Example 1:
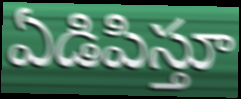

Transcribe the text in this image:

ఏడిపిస్తూ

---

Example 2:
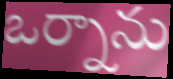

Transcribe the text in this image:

ఒర్నాను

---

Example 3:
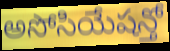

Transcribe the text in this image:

అసోసియేషన్తో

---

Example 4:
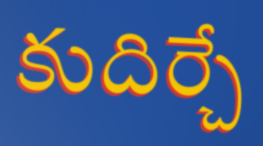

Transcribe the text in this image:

కుదిర్చే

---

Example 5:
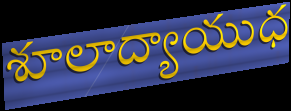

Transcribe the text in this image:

శూలాద్యాయుధ